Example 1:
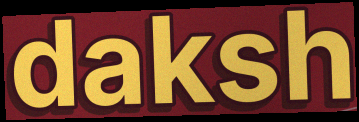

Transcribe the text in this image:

daksh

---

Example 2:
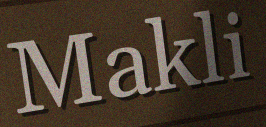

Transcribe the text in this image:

Makli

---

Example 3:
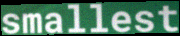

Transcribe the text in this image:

smallest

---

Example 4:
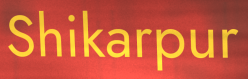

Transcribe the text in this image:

Shikarpur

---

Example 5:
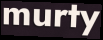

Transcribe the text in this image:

murty